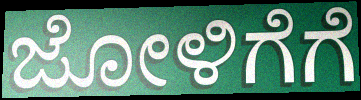
ಜೋಳಿಗೆಗೆ